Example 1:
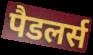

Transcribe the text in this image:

पैडलर्स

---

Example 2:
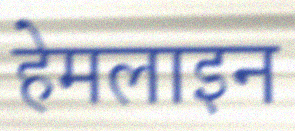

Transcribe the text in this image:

हेमलाइन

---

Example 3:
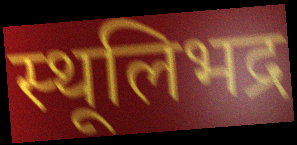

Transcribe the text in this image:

स्थूलिभद्र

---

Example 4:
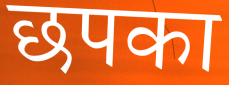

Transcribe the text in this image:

छपका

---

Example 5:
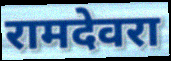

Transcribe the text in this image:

रामदेवरा